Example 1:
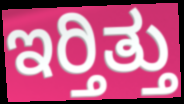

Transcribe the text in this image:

ಇರ್‍ತಿತ್ತು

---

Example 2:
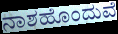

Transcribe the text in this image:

ನಾಶಹೊಂದುವೆ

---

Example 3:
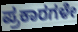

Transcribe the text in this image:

ಪ್ರಕಾರಗಳೇ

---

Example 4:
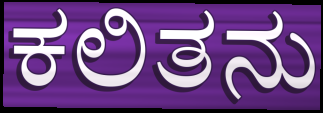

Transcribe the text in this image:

ಕಲಿತನು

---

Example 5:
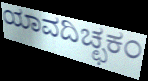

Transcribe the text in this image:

ಯಾವದಿಚ್ಛಕಂ